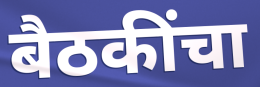
बैठकींचा